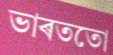
ভাৰততো